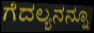
ಗೆದಲ್ಯನನ್ನೂ